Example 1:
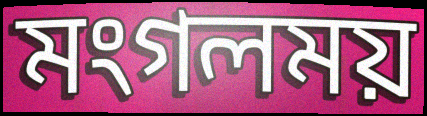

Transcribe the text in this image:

মংগলময়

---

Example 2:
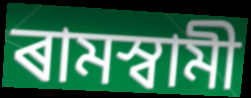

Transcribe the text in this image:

ৰামস্বামী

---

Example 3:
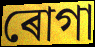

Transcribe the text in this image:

ৰোগা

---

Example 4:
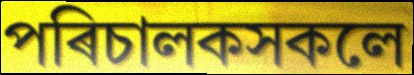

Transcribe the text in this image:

পৰিচালকসকলে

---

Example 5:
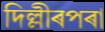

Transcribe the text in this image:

দিল্লীৰপৰা